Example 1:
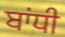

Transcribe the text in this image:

ਬਾਂਧੀ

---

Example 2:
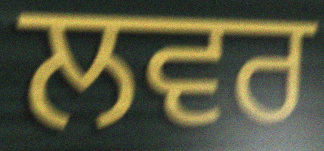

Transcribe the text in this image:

ਲਵਰ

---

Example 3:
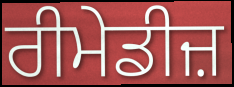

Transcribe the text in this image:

ਰੀਮੇਡੀਜ਼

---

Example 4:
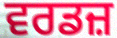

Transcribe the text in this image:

ਵਰਡਜ਼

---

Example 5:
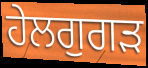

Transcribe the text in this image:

ਹੇਲਗੁਗੜ